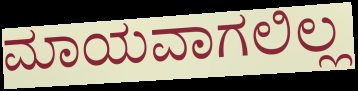
ಮಾಯವಾಗಲಿಲ್ಲ